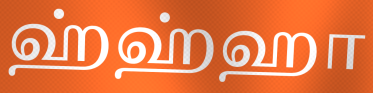
ஹ்ஹ்ஹா